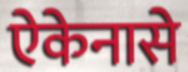
ऐकेनासे